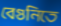
বেগুনিতে